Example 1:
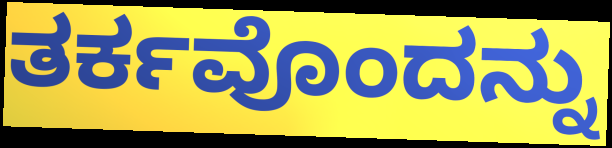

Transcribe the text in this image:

ತರ್ಕವೊಂದನ್ನು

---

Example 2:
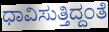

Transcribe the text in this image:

ಧಾವಿಸುತ್ತಿದ್ದಂತೆ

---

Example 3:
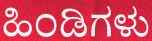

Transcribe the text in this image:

ಹಿಂಡಿಗಳು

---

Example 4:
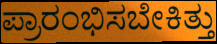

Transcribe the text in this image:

ಪ್ರಾರಂಭಿಸಬೇಕಿತ್ತು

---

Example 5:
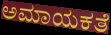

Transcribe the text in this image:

ಅಮಾಯಕತೆ